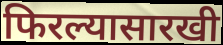
फिरल्यासारखी